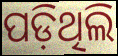
ପଡ଼ିଥିଲି